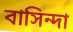
বাসিন্দা